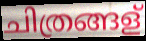
ചിത്രങ്ങള്